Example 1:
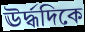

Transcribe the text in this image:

ঊর্দ্ধদিকে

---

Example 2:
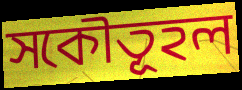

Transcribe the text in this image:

সকৌতূহল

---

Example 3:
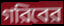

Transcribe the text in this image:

গরিবের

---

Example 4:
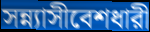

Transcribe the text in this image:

সন্ন্যাসীবেশধারী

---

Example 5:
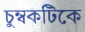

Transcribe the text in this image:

চুম্বকটিকে